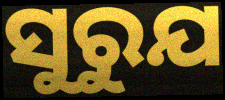
ସୁରୁଯ